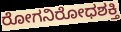
ರೋಗನಿರೋಧಶಕ್ತಿ